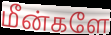
மீன்களே